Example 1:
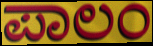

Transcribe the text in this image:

ಪಾಲಂ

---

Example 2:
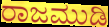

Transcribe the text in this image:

ರಾಜಮುಡಿ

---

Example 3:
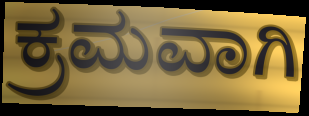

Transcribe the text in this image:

ಕ್ರಮವಾಗಿ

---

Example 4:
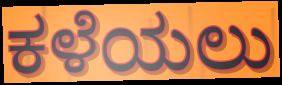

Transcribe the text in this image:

ಕಳೆಯಲು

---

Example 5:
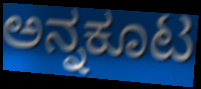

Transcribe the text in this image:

ಅನ್ನಕೂಟ